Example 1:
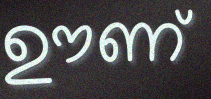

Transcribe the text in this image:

ഊണ്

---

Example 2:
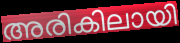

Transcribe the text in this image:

അരികിലായി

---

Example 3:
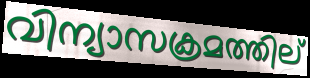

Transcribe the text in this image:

വിന്യാസക്രമത്തില്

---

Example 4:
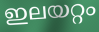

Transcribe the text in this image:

ഇലയറ്റം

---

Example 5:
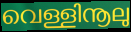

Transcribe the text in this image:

വെള്ളിനൂലു